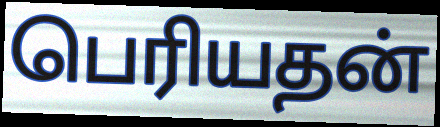
பெரியதன்